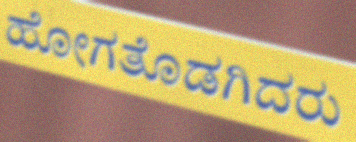
ಹೋಗತೊಡಗಿದರು